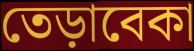
তেড়াবেকা